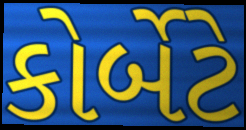
કોર્બેટે